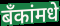
बँकांमधे